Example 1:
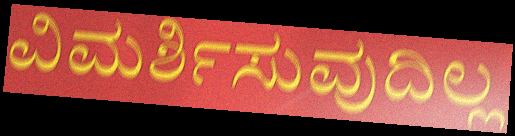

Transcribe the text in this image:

ವಿಮರ್ಶಿಸುವುದಿಲ್ಲ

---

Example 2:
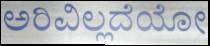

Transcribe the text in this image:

ಅರಿವಿಲ್ಲದೆಯೋ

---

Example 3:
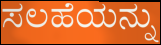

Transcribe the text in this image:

ಸಲಹೆಯನ್ನು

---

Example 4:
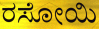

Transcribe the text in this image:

ರಸೋಯಿ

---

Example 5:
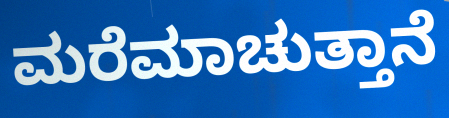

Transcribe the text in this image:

ಮರೆಮಾಚುತ್ತಾನೆ